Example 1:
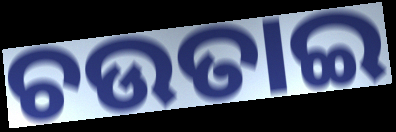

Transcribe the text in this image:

ଚଉତାଇ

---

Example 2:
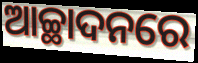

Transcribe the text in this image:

ଆଚ୍ଛାଦନରେ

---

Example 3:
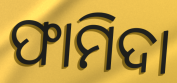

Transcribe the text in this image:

ଫାମିଦା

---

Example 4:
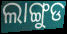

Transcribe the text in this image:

ଲାଙ୍ଗୁଡ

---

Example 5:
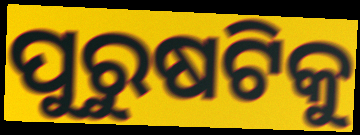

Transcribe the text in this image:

ପୁରୁଷଟିକୁ